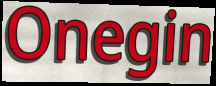
Onegin